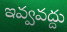
ఇవ్వవద్దు